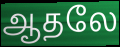
ஆதலே